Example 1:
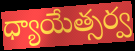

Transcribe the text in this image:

ధ్యాయేత్సర్వ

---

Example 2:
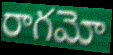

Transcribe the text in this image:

రాగమో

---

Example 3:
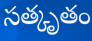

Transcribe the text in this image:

సత్కృతం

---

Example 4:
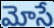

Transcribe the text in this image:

మోసే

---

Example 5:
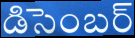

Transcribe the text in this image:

డిసెంబర్